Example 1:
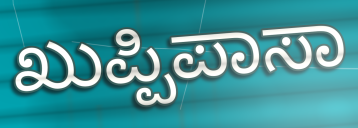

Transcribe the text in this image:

ಖುಪ್ಪಿಪಾಸಾ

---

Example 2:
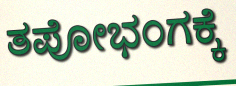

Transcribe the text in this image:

ತಪೋಭಂಗಕ್ಕೆ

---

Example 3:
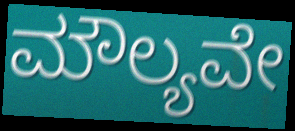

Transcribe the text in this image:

ಮೌಲ್ಯವೇ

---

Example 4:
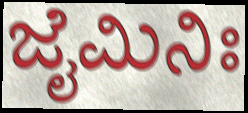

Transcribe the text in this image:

ಜೈಮಿನಿಃ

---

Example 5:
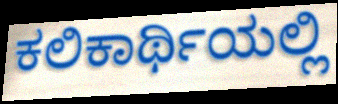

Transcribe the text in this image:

ಕಲಿಕಾರ್ಥಿಯಲ್ಲಿ